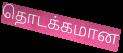
தொடக்கமான